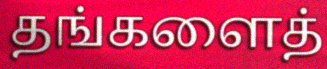
தங்களைத்